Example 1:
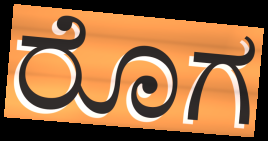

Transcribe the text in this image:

ರೊಗ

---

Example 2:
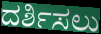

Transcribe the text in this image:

ದರ್ಶಿಸಲು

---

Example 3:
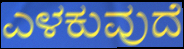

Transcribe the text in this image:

ಎಳಕುವುದೆ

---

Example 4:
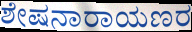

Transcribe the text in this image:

ಶೇಷನಾರಾಯಣರ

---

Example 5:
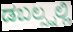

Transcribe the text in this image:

ಡಬಲ್ಸ್ನಲ್ಲಿ